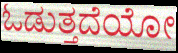
ಓಡುತ್ತದೆಯೋ